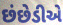
છંછેડીએ